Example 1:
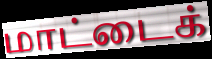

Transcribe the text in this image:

மாட்டைக்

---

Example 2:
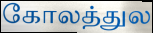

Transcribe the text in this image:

கோலத்துல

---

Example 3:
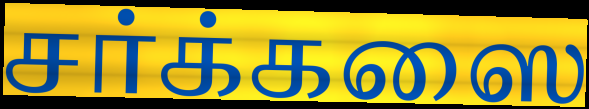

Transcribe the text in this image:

சர்க்கஸை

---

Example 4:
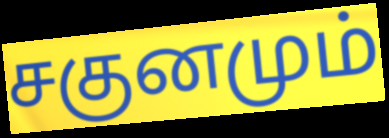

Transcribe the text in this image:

சகுனமும்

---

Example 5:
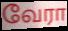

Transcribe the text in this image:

வேரா